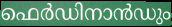
ഫെർഡിനാൻഡും